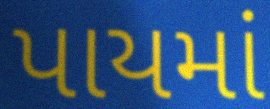
પાયમાં